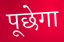
पूछेगा